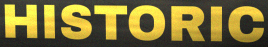
HISTORIC